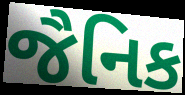
જૈનિક